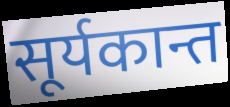
सूर्यकान्त